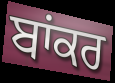
ਬਾਂਕਰ